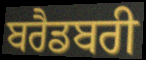
ਬਰੈਡਬਰੀ